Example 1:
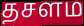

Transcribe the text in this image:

தசளம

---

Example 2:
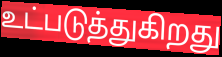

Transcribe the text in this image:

உட்படுத்துகிறது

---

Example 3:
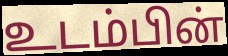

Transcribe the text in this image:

உடம்பின்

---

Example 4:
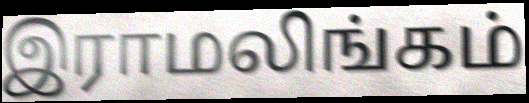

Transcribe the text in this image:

இராமலிங்கம்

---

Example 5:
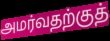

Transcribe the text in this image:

அமர்வதற்குத்